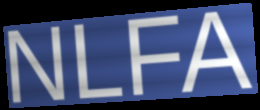
NLFA